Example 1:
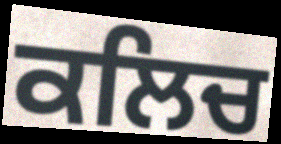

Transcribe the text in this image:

ਕਲਿਚ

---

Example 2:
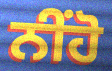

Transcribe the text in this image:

ਨੀਂਹੋ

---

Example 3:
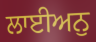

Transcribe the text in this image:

ਲਾਈਅਨੁ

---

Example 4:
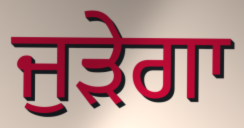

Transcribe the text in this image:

ਜੁੜੇਗਾ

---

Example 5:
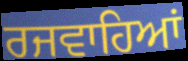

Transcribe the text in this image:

ਰਜਵਾਹਿਆਂ